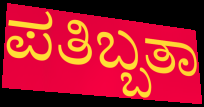
ಪತಿಬ್ಬತಾ